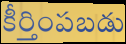
కీర్తింపబడు